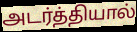
அடர்த்தியால்